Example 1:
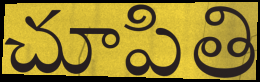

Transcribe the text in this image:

చూపితి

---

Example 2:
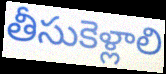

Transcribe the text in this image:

తీసుకెళ్లాలి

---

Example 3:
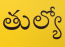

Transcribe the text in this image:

తుల్యో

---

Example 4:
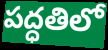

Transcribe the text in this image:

పద్ధతిలో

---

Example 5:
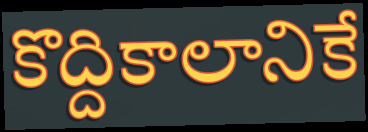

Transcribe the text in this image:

కొద్దికాలానికే